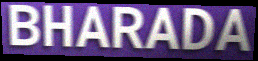
BHARADA